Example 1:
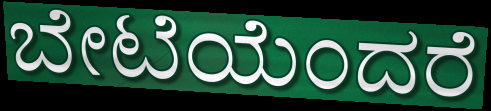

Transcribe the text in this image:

ಬೇಟೆಯೆಂದರೆ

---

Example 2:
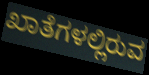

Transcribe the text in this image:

ಖಾತೆಗಳಲ್ಲಿರುವ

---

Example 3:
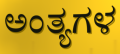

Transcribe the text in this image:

ಅಂತ್ಯಗಳ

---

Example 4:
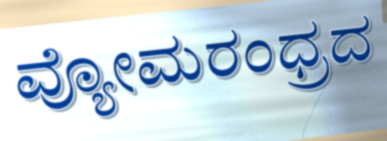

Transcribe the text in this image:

ವ್ಯೋಮರಂಧ್ರದ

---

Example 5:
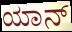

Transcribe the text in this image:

ಯಾನ್